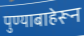
पुण्याबाहेरून